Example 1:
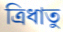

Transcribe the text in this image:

ত্রিধাতু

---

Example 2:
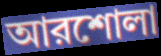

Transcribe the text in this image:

আরশোলা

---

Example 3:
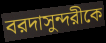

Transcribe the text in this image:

বরদাসুন্দরীকে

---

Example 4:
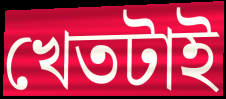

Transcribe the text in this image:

খেতটাই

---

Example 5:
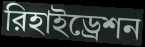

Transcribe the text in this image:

রিহাইড্রেশন